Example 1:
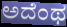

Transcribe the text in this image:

ಅದೆಂಥ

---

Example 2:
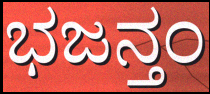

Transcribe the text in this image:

ಭಜನ್ತಂ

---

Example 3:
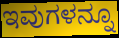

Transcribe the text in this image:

ಇವುಗಳನ್ನೂ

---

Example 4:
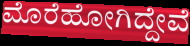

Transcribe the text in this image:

ಮೊರೆಹೋಗಿದ್ದೇವೆ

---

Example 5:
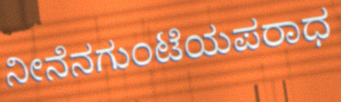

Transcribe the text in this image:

ನೀನೆನಗುಂಟೆಯಪರಾಧ